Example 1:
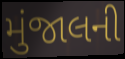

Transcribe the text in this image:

મુંજાલની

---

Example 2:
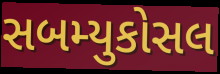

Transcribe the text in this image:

સબમ્યુકોસલ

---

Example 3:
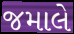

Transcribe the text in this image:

જમાલે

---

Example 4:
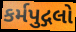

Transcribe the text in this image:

કર્મપુદ્ગલો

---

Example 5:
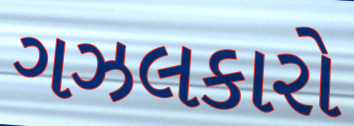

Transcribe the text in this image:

ગઝલકારો